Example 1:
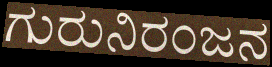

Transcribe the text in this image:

ಗುರುನಿರಂಜನ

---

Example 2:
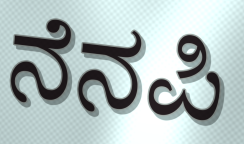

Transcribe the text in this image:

ನೆನಪಿ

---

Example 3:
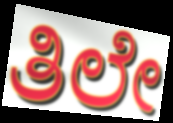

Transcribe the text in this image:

ತಿಲೇ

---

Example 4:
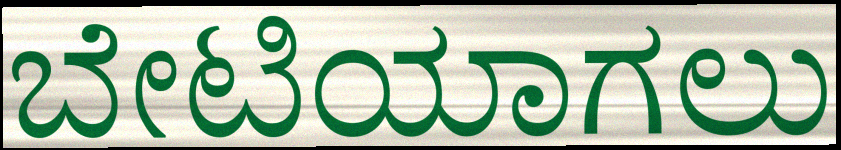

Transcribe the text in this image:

ಬೇಟಿಯಾಗಲು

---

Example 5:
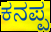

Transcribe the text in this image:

ಕನಪ್ಪ